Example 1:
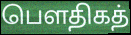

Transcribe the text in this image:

பௌதிகத்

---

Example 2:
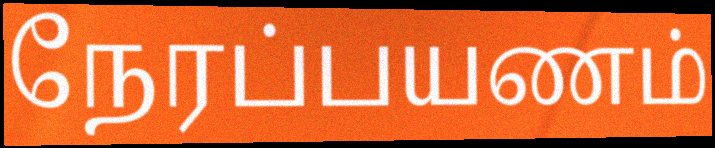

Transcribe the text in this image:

நேரப்பயணம்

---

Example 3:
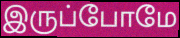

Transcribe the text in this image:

இருப்போமே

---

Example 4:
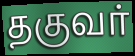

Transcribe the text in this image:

தகுவர்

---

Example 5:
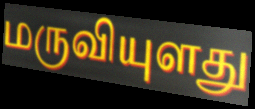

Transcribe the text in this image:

மருவியுளது